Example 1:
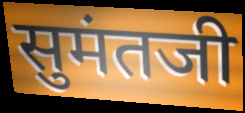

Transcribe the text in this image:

सुमंतजी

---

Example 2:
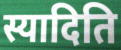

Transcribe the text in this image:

स्यादिति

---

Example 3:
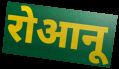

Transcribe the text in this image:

रोआनू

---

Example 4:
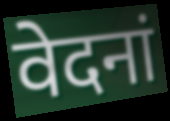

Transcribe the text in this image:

वेदनां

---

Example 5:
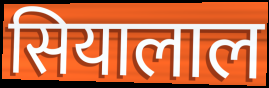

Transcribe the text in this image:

सियालाल